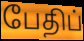
பேதிப்